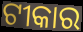
ଟୀକାର